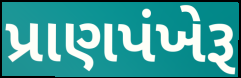
પ્રાણપંખેરૂ